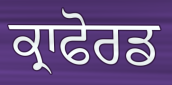
ਕ੍ਰਾਫੋਰਡ